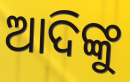
ଆଦିଙ୍କୁ